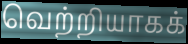
வெற்றியாகக்